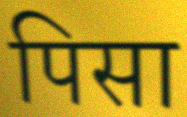
पिसा